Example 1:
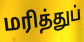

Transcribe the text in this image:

மரித்துப்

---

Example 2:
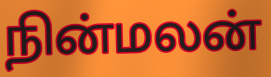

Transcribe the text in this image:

நின்மலன்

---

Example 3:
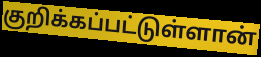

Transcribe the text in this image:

குறிக்கப்பட்டுள்ளான்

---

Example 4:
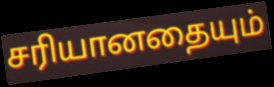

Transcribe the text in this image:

சரியானதையும்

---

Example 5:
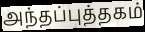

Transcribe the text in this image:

அந்தப்புத்தகம்